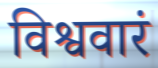
विश्ववारं